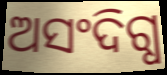
ଅସଂଦିଗ୍ଧ